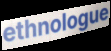
ethnologue